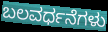
ಬಲವರ್ಧನೆಗಳು